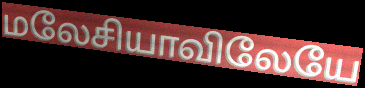
மலேசியாவிலேயே